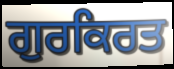
ਗੁਰਕਿਰਤ